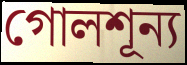
গোলশূন্য